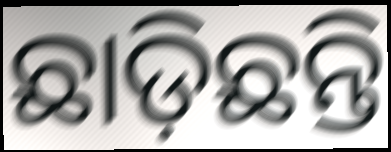
ଛାଡ଼ିଛନ୍ତି